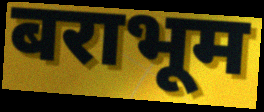
बराभूम